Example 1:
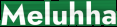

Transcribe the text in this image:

Meluhha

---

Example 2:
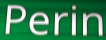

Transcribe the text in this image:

Perin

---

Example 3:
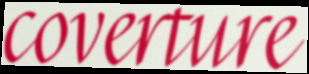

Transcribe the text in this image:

coverture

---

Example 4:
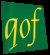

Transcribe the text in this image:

qof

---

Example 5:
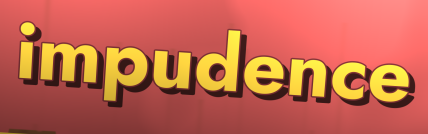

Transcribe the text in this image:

impudence